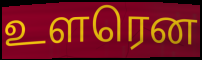
உளரென